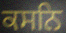
ਕਸਨਿ